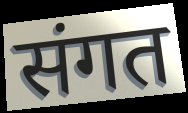
संगत